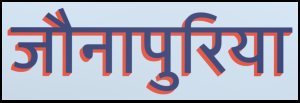
जौनापुरिया